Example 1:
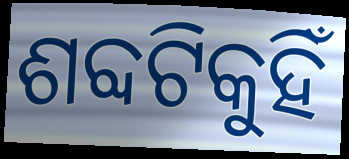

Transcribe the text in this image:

ଶବ୍ଦଟିକୁହିଁ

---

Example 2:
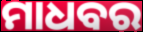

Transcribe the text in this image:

ମାଧବର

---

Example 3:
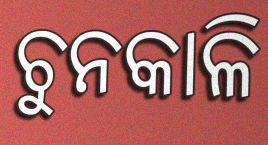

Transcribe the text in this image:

ଚୁନକାଳି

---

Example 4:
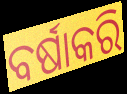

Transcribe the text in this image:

ବର୍ଷାକରି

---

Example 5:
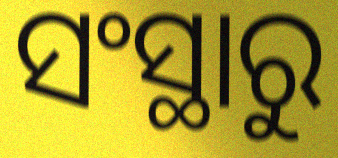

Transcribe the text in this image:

ସଂସ୍ଥାରୁ